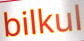
bilkul